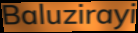
Baluzirayi